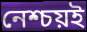
নেশ্চয়ই